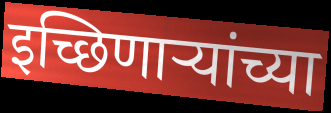
इच्छिणार्‍यांच्या